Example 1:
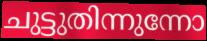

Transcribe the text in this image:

ചുട്ടുതിന്നുന്നോ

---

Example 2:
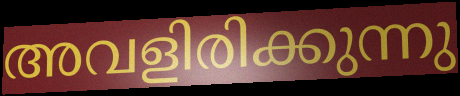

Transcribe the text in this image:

അവളിരിക്കുന്നു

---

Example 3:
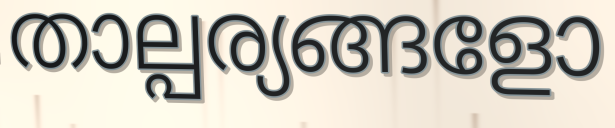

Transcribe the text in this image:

താല്പര്യങ്ങളോ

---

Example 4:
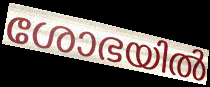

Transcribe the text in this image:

ശോഭയിൽ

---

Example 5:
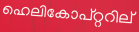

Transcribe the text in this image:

ഹെലികോപ്റ്ററില്